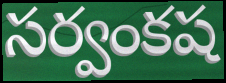
సర్వంకష